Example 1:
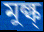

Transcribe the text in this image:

মুল্ক্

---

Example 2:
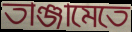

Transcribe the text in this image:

তাঞ্জামেতে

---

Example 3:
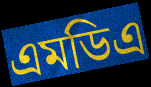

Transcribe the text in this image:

এমডিএ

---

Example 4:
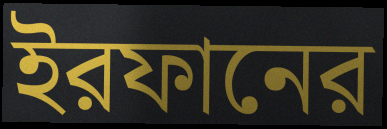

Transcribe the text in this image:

ইরফানের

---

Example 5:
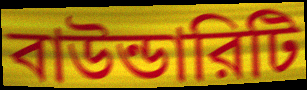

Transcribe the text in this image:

বাউন্ডারিটি